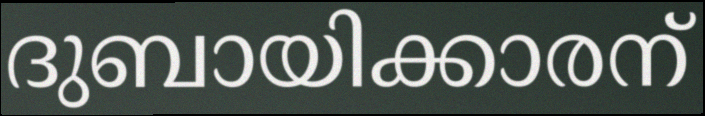
ദുബായിക്കാരന്